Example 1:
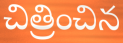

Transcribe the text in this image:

చిత్రించిన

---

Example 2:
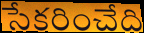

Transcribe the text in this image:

సేకరించేది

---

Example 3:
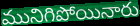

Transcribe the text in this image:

మునిగిపోయినారు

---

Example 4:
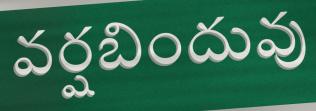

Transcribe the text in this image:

వర్షబిందువు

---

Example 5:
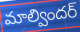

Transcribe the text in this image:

మాల్విందర్